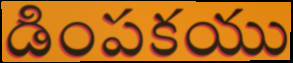
డింపకయు